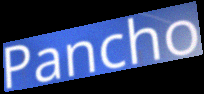
Pancho